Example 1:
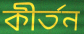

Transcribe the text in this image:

কীর্তন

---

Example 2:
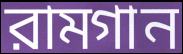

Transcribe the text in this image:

রামগান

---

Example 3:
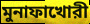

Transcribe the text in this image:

মুনাফাখোরী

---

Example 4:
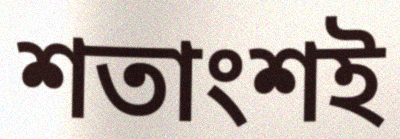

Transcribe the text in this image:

শতাংশই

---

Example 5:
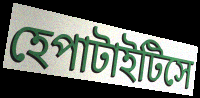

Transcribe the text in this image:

হেপাটাইটিসে